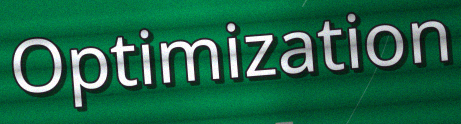
Optimization